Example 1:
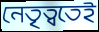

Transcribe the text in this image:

নেতৃত্বতেই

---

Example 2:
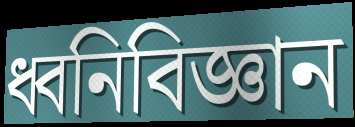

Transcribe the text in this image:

ধ্বনিবিজ্ঞান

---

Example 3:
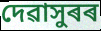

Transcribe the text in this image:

দেৱাসুৰৰ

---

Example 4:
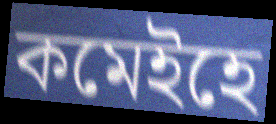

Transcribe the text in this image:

কমেইহে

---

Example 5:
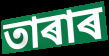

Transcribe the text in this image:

তাৰাৰ